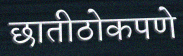
छातीठोकपणे